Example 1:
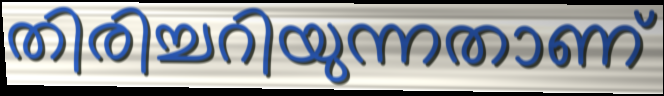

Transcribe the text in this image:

തിരിച്ചറിയുന്നതാണ്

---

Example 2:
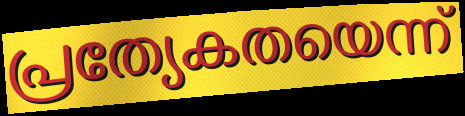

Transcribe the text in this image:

പ്രത്യേകതയെന്ന്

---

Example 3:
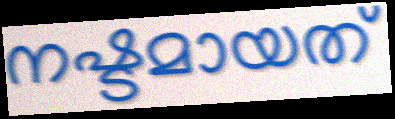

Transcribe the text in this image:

നഷ്ടമായത്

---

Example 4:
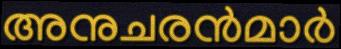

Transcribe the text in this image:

അനുചരൻമാർ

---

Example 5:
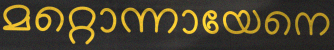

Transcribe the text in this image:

മറ്റൊന്നായേനെ